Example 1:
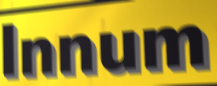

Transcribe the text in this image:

Innum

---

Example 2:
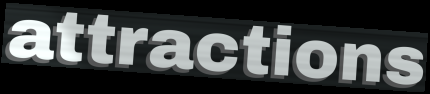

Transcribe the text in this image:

attractions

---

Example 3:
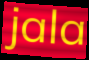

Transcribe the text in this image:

jala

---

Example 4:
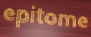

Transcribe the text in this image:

epitome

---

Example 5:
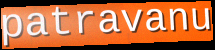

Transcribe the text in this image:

patravanu